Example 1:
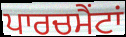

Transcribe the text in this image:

ਪਾਰਚਮੈਂਟਾਂ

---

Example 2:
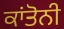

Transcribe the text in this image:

ਕਾਂਤੋਨੀ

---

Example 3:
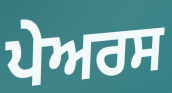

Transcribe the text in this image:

ਪੇਅਰਸ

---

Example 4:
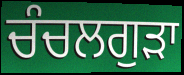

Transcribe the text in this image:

ਚੰਚਲਗੁੜਾ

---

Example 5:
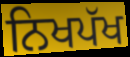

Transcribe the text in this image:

ਨਿਖਪੱਖ